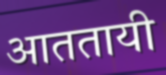
आततायी